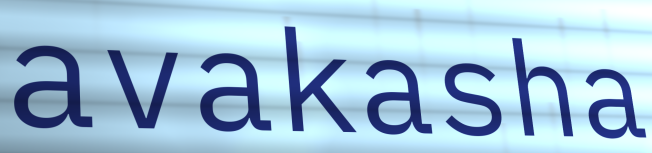
avakasha